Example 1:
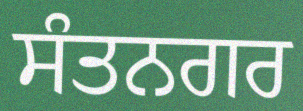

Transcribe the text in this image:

ਸੰਤਨਗਰ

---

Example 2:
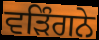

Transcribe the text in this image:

ਵੜਿੰਗਨੇ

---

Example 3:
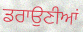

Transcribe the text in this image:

ਡਰਾਉਣੀਆਂ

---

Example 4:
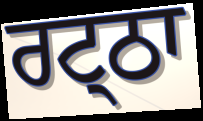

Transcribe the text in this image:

ਰਟ੍ਠਾ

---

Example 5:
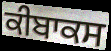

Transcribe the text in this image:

ਕੀਬਾਕਸ